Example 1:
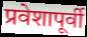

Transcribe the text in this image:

प्रवेशापूर्वी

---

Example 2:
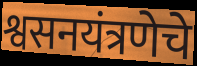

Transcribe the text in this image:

श्वसनयंत्रणेचे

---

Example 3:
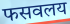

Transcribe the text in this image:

फसवलय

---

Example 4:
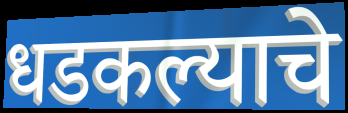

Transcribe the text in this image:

धडकल्याचे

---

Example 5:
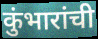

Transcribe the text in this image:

कुंभारांची